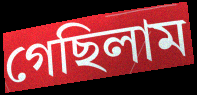
গেছিলাম